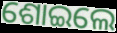
ଶୋଇଲେ